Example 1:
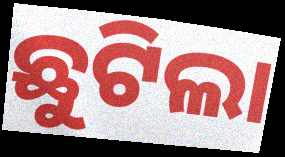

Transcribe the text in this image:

ଛୁଟିଲା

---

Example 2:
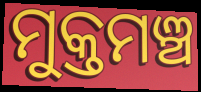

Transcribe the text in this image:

ମୁକ୍ତମଞ୍ଚ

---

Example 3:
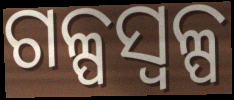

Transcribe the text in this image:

ଗଳ୍ପସ୍ୱଳ୍ପ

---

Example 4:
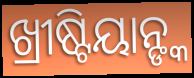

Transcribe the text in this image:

ଖ୍ରୀଷ୍ଟିୟାନ୍ଙ୍କ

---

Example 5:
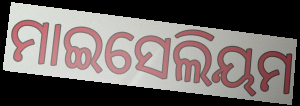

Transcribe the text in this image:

ମାଇସେଲିୟମ